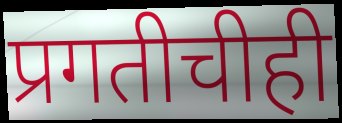
प्रगतीचीही